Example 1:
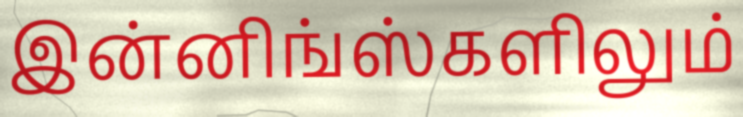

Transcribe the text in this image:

இன்னிங்ஸ்களிலும்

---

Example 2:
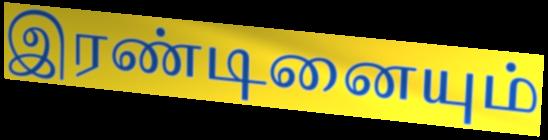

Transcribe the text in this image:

இரண்டினையும்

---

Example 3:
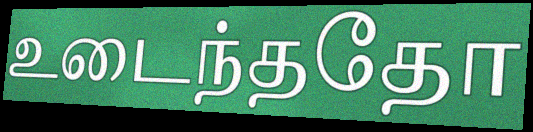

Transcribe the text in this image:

உடைந்ததோ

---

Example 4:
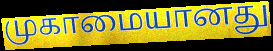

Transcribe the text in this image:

முகாமையானது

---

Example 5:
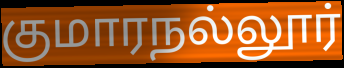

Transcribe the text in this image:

குமாரநல்லூர்